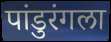
पांडुरंगला